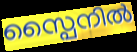
സ്പൈനിൽ